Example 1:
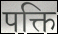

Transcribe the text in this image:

पक्ति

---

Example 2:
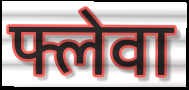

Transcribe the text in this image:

फ्लेवा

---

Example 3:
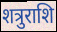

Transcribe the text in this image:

शत्रुराशि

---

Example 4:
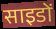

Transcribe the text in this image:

साइडों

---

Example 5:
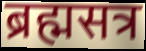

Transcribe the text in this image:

ब्रह्मसत्र